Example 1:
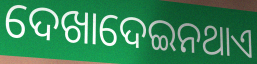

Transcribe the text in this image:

ଦେଖାଦେଇନଥାଏ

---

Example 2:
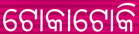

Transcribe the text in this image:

ଟୋକାଟୋକି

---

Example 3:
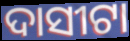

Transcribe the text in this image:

ଦାସୀଟା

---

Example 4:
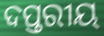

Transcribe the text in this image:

ଦପ୍ତରୀୟ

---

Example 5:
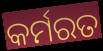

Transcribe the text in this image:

କର୍ମରତ